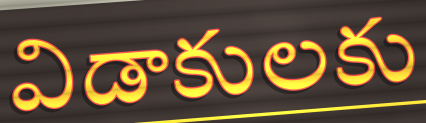
విడాకులకు